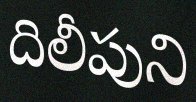
దిలీపుని